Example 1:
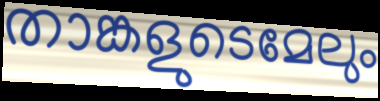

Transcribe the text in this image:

താങ്കളുടെമേലും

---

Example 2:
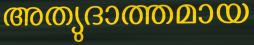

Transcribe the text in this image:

അത്യുദാത്തമായ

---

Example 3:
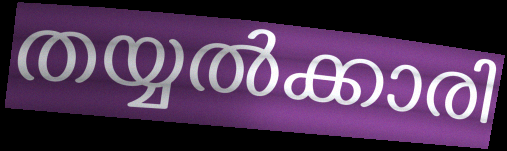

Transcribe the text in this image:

തയ്യൽക്കാരി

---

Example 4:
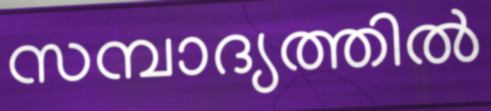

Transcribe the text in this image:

സമ്പാദ്യത്തിൽ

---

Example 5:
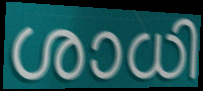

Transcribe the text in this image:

ശാധി